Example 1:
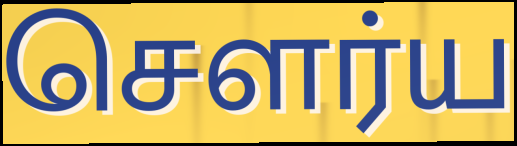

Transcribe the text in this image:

சௌர்ய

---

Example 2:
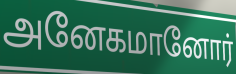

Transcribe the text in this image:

அனேகமானோர்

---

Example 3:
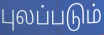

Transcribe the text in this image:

புலப்படும்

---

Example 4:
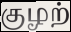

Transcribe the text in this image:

குழற்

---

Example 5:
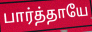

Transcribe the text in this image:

பார்த்தாயே